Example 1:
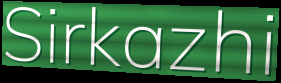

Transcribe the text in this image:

Sirkazhi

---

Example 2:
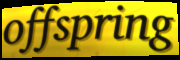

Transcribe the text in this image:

offspring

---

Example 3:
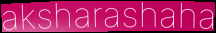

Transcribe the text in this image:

aksharashaha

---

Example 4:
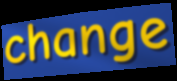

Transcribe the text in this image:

change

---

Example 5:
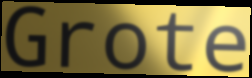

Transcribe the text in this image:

Grote